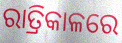
ରାତ୍ରିକାଳରେ